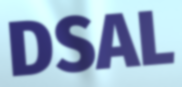
DSAL